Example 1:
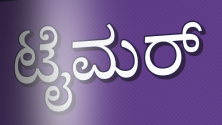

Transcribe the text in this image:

ಟೈಮರ್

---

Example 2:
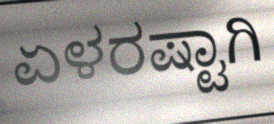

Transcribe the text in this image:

ಏಳರಷ್ಟಾಗಿ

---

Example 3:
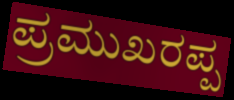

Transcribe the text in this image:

ಪ್ರಮುಖರಪ್ಪ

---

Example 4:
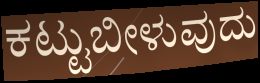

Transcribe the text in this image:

ಕಟ್ಟುಬೀಳುವುದು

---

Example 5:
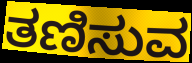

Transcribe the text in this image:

ತಣಿಸುವ